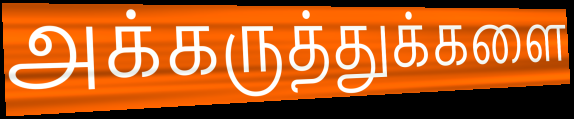
அக்கருத்துக்களை